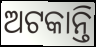
ଅଟକାନ୍ତି